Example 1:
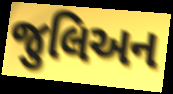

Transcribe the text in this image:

જુલિઅન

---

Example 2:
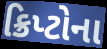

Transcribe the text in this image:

ક્રિપ્ટોના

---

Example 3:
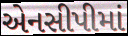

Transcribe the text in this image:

એનસીપીમાં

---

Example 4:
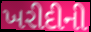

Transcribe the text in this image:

ખરીદીની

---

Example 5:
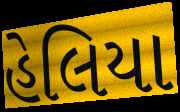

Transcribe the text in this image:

હેલિયા